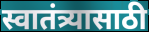
स्वातंत्र्यासाठी